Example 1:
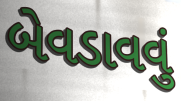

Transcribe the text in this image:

બેવડાવવું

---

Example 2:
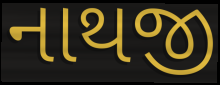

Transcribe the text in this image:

નાથજી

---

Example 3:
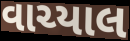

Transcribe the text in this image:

વાચ્યાલ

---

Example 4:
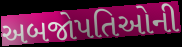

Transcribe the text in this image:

અબજોપતિઓની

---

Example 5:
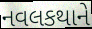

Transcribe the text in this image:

નવલકથાને